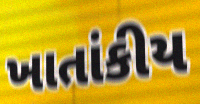
ખાતાંકીય